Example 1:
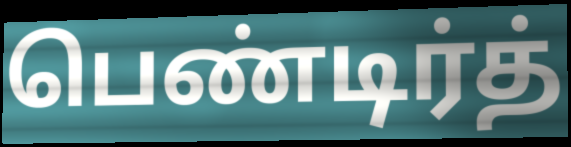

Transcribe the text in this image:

பெண்டிர்த்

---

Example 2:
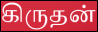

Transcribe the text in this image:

கிருதன்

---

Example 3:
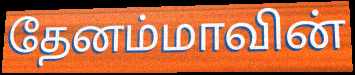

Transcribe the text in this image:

தேனம்மாவின்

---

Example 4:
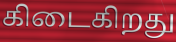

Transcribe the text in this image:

கிடைகிறது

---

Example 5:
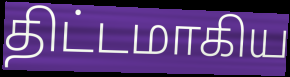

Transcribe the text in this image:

திட்டமாகிய